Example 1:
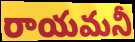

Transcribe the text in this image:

రాయమనీ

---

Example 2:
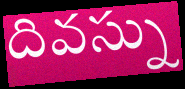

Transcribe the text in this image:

దివస్ను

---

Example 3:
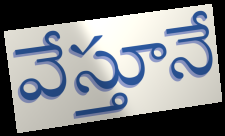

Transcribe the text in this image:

వేస్తూనే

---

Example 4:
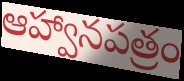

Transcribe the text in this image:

ఆహ్వానపత్రం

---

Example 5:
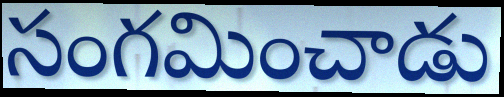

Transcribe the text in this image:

సంగమించాడు